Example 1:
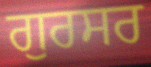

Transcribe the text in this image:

ਗੁਰਸਰ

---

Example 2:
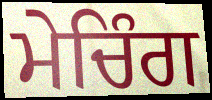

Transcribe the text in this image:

ਮੇਚਿੰਗ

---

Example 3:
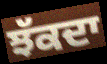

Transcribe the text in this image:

ਝੱਕਦਾ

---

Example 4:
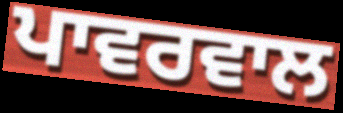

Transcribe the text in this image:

ਪਾਵਰਵਾਲ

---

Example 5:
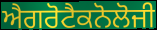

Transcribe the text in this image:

ਐਗਰੋਟੈਕਨੋਲੋਜੀ